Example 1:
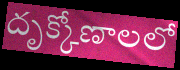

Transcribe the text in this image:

దృక్కోణాలలో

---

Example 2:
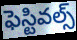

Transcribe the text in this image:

ఫెస్టివల్స్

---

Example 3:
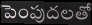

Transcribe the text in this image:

పెంపుదలతో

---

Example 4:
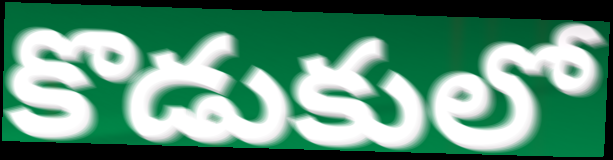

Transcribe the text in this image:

కొడుకులో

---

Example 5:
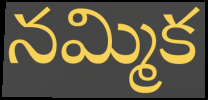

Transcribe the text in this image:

నమ్మిక